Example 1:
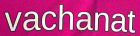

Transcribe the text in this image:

vachanat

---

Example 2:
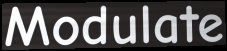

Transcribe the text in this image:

Modulate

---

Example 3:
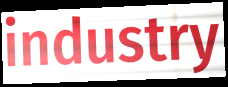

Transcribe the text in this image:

industry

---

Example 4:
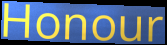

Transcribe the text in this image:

Honour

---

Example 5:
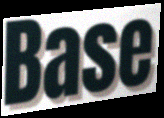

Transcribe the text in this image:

Base